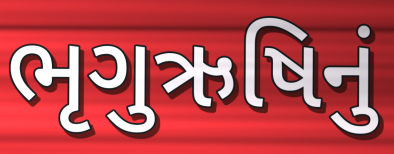
ભૃગુઋષિનું